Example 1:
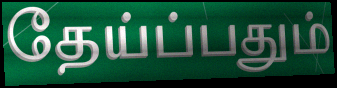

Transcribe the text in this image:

தேய்ப்பதும்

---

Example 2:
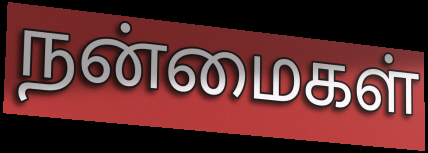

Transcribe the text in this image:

நன்மைகள்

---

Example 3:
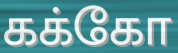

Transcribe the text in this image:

கக்கோ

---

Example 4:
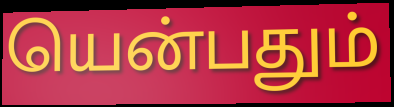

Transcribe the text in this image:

யென்பதும்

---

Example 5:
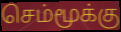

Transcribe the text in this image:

செம்மூக்கு